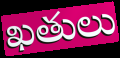
ఖతులు